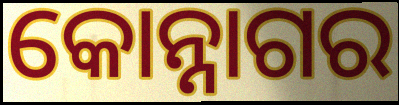
କୋନ୍ନାଗର